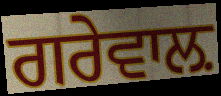
ਗਰੇਵਾਲ਼